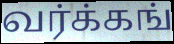
வர்க்கங்